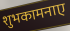
शुभकामनाए